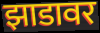
झाडावर